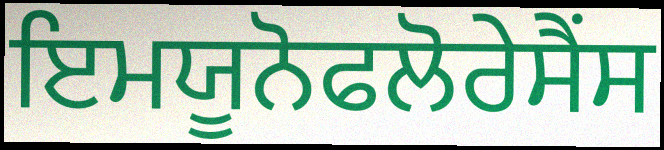
ਇਮਯੂਨੋਫਲੋਰੇਸੈਂਸ